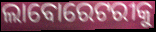
ଲାବୋରେଟରୀକୁ